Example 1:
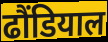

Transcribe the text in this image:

ढौंडियाल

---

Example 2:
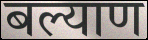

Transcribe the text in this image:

बल्याण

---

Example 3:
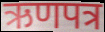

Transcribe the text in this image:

ऋणपत्र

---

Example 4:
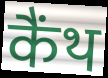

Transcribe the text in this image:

कैंथ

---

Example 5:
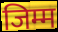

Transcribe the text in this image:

जिम्म